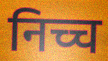
निच्च